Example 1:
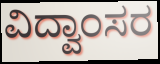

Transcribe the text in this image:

ವಿದ್ವಾಂಸರ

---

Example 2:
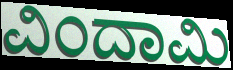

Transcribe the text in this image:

ವಿಂದಾಮಿ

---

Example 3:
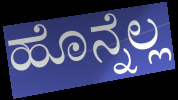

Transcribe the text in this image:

ಹೊನ್ನೆಲ್ಲ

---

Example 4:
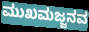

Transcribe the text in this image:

ಮುಖಮಜ್ಜನವ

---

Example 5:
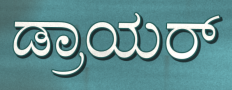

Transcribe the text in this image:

ಡ್ರಾಯರ್